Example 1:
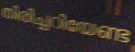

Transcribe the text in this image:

തിരിച്ചറിയേണ്ട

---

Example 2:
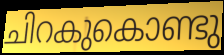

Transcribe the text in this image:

ചിറകുകൊണ്ടു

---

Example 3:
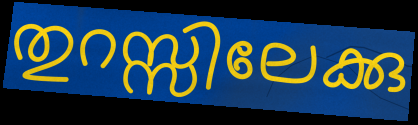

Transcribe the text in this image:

തുറസ്സിലേക്കു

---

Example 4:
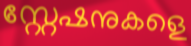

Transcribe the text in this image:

സ്റ്റേഷനുകളെ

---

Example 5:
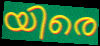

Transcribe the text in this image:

യിരെ